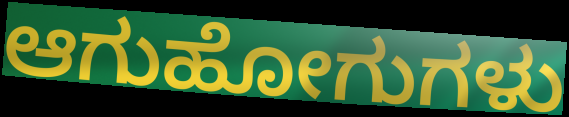
ಆಗುಹೋಗುಗಳು